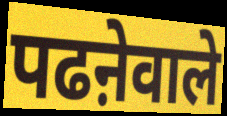
पढऩेवाले